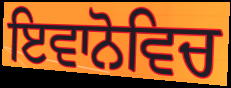
ਇਵਾਨੋਵਿਚ